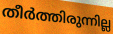
തീർത്തിരുന്നില്ല